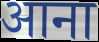
आना